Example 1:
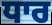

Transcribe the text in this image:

ਧਾਰ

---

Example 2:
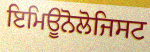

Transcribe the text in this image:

ਇਮਿਊਨੋਲੋਜਿਸਟ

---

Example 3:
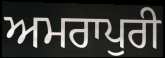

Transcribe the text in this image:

ਅਮਰਾਪੁਰੀ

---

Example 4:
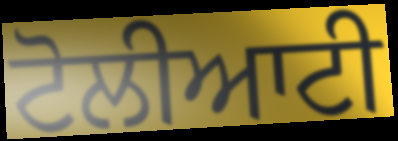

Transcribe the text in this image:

ਟੋਲੀਆਟੀ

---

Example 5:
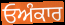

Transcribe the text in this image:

ਓਅੰਕਾਰ